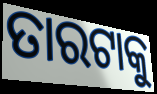
ତାରଟାକୁ